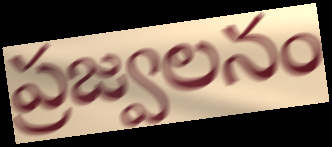
ప్రజ్వలనం